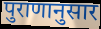
पुराणानुसार